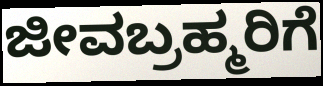
ಜೀವಬ್ರಹ್ಮರಿಗೆ